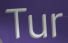
Tur